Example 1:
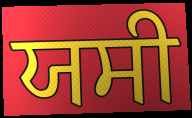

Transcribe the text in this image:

ਯਸੀ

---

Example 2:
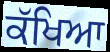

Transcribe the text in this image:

ਕੱਖਿਆ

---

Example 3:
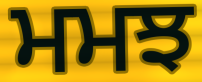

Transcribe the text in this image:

ਮਮਝ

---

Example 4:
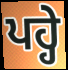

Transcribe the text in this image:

ਪਹ੍ਹੇ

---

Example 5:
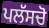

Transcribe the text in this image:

ਪਲੱਸਚੋ